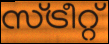
സ്ട്രീറ്റ്